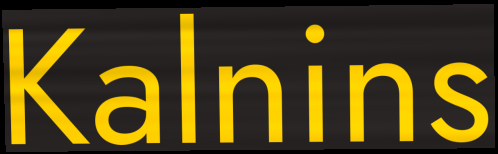
Kalnins